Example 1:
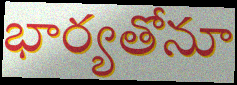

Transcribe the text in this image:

భార్యతోనూ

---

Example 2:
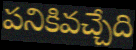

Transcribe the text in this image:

పనికివచ్చేది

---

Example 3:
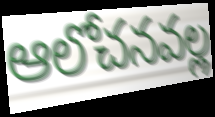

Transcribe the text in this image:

ఆలోచనవల్ల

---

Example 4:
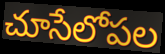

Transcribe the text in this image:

చూసేలోపల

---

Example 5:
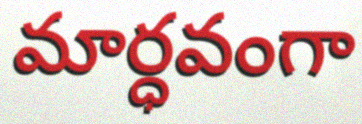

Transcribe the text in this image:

మార్ధవంగా